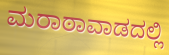
ಮರಾಠಾವಾಡದಲ್ಲಿ